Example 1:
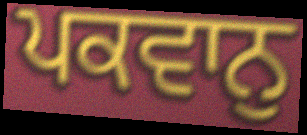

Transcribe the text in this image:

ਪਕਵਾਨੁ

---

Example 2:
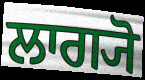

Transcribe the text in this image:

ਲਾਗ੍ਯੋ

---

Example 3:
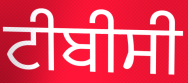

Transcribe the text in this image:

ਟੀਬੀਸੀ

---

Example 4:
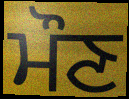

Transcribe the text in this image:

ਮੌਣ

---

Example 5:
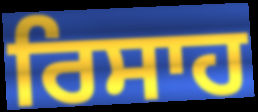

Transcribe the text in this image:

ਰਿਸਾਹ